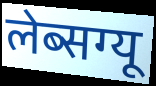
लेब्सग्यू